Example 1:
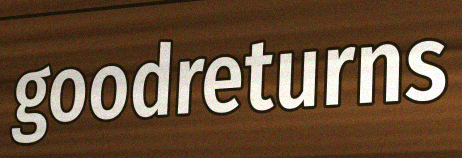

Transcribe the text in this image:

goodreturns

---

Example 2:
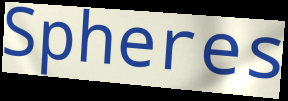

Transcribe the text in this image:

Spheres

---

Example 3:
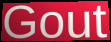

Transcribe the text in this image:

Gout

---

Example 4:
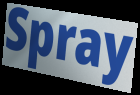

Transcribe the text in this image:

Spray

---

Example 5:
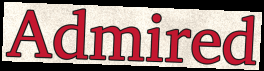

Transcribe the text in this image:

Admired